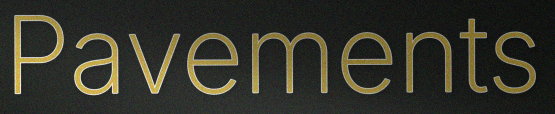
Pavements